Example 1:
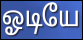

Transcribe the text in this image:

ஓடியே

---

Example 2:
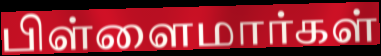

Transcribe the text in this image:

பிள்ளைமார்கள்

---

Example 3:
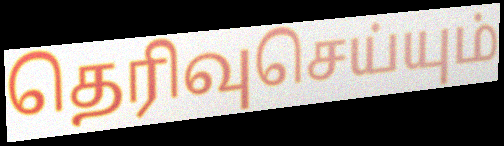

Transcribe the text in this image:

தெரிவுசெய்யும்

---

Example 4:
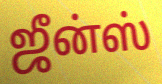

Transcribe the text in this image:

ஜீன்ஸ்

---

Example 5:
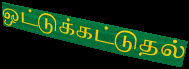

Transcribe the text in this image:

ஒட்டுக்கட்டுதல்